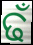
ଢଁ